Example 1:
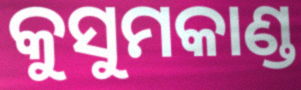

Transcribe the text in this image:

କୁସୁମକାଣ୍ଡ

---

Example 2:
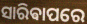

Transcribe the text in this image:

ସାରିଵାପରେ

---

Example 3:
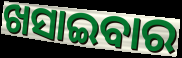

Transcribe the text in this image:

ଖସାଇବାର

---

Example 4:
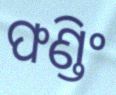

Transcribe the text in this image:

ଫଣ୍ଡିଂ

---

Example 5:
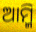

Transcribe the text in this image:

ଆମ୍ମି